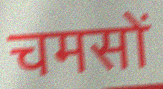
चमसों